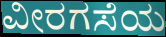
ವೀರಗಸೆಯ